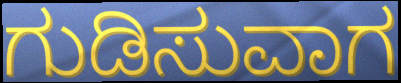
ಗುಡಿಸುವಾಗ